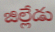
జిల్లేడు